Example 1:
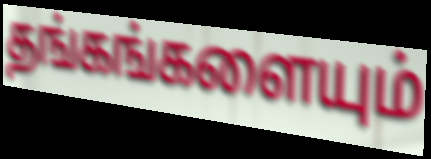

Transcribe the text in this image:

தங்கங்களையும்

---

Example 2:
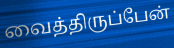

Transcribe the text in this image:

வைத்திருப்பேன்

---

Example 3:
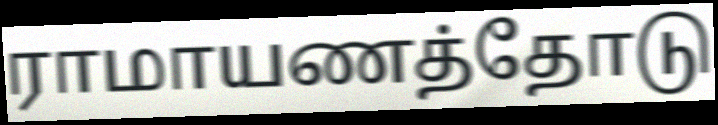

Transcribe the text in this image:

ராமாயணத்தோடு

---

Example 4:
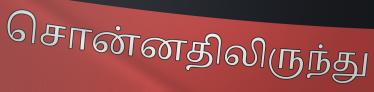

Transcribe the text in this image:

சொன்னதிலிருந்து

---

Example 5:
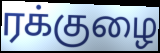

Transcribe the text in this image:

ரக்குழை